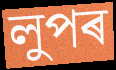
লুপৰ